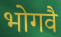
भोगवै